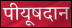
पीयूषदान